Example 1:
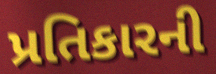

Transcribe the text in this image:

પ્રતિકારની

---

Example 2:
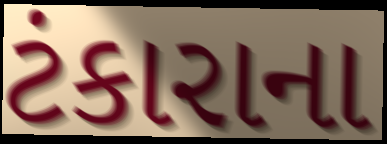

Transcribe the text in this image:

ટંકારાના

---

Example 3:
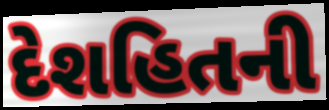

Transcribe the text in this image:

દેશહિતની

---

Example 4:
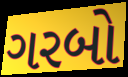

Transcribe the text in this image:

ગરબો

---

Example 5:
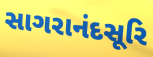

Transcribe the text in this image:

સાગરાનંદસૂરિ